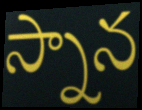
స్నాన